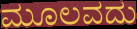
ಮೂಲವದು